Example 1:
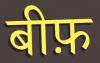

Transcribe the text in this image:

बीफ़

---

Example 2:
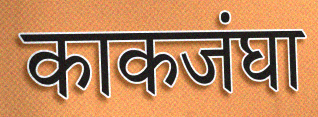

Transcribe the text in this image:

काकजंघा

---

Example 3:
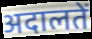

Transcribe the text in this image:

अदालतें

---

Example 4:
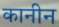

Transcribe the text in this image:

कानीन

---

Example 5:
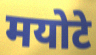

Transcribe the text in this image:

मयोटे